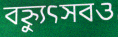
বহ্ন্যুৎসবও